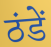
ठंडें